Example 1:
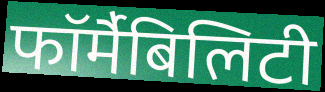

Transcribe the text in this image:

फॉर्मैबिलिटी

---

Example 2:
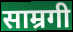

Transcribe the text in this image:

साम्रगी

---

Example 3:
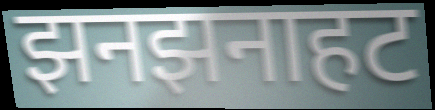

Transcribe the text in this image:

झनझनाहट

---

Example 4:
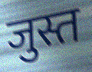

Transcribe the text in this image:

जुस्त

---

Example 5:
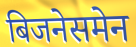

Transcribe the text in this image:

बिजनेसमेन